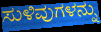
ಸುಳಿವುಗಳನ್ನು